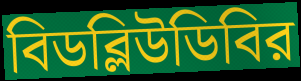
বিডব্লিউডিবির